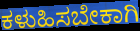
ಕಳುಹಿಸಬೇಕಾಗಿ